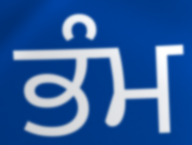
ਭੰਮ